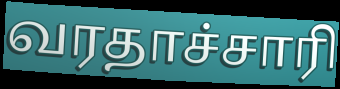
வரதாச்சாரி